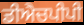
ਡੀਐਚਪੀਪੀ